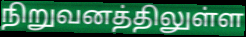
நிறுவனத்திலுள்ள